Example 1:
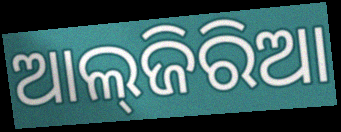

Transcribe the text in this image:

ଆଲ୍‌ଜିରିଆ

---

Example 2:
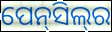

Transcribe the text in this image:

ପେନ୍‍ସିଲ୍‍ର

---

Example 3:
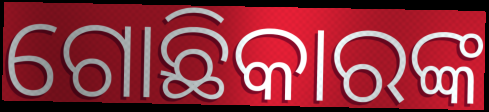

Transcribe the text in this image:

ଗୋଛିକାରଙ୍କ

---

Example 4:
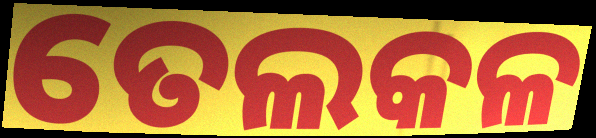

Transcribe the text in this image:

ତେଲକଳ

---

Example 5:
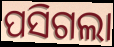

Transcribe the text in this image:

ପସିଗଲା